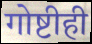
गोष्टीही